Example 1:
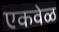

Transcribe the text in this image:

एकवेळ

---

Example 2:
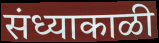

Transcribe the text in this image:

संध्‍याकाळी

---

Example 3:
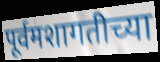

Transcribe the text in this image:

पूर्वमशागतीच्या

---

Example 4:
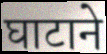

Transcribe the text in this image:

घाटाने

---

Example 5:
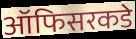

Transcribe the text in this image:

ऑफिसरकडे